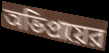
অভিপ্রায়ের